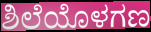
ಶಿಲೆಯೊಳಗಣ